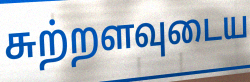
சுற்றளவுடைய